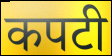
कपटी